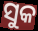
ସୁକ